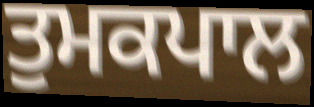
ਤੁਮਕਪਾਲ